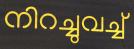
നിറച്ചുവച്ച്